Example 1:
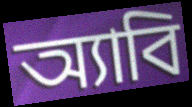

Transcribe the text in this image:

অ্যাবি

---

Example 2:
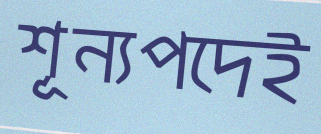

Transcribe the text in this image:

শূন্যপদেই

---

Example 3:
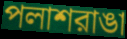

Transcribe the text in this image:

পলাশরাঙা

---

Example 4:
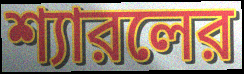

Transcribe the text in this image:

শ্যারলের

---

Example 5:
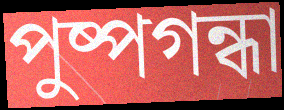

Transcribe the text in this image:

পুষ্পগন্ধা